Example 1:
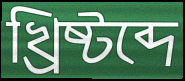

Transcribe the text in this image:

খ্রিষ্টব্দে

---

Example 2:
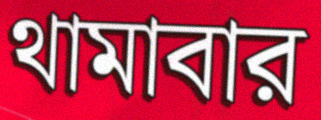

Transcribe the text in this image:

থামাবার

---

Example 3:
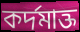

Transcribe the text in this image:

কর্দমাক্ত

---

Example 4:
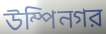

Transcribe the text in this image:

উম্পিনগর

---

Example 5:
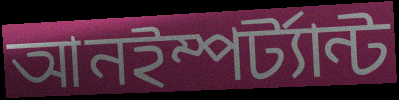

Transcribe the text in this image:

আনইম্পর্ট্যান্ট